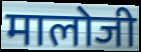
मालोजी